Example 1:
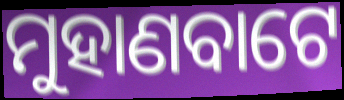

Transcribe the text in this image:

ମୁହାଣବାଟେ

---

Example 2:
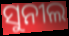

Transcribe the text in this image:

ସୁନୀଲ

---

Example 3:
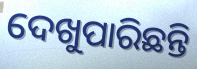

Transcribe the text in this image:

ଦେଖୁପାରିଛନ୍ତି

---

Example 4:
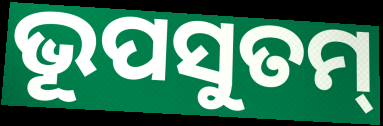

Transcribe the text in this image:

ଭୂପସୁତମ୍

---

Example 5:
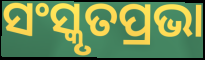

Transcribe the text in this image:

ସଂସ୍କୃତପ୍ରଭା